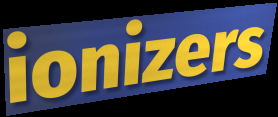
ionizers